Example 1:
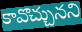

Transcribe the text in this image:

కావొచ్చునని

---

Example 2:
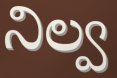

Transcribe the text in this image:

నిల్వ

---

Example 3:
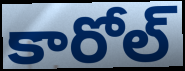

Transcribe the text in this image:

కారోల్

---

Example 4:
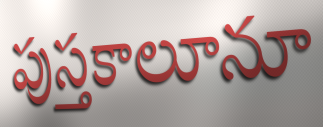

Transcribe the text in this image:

పుస్తకాలూనూ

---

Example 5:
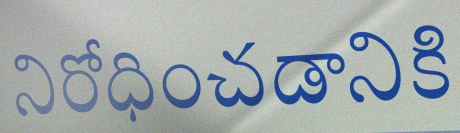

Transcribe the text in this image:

నిరోధించడానికి